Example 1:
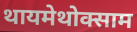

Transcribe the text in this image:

थायमेथोक्साम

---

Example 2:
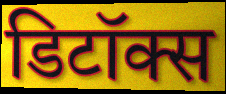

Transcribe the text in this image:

डिटॉक्स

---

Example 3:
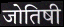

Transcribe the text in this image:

जोतिषी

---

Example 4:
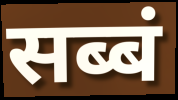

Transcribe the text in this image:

सब्बं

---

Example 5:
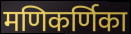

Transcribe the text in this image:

मणिकर्णिका